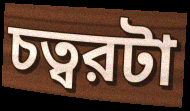
চত্বরটা